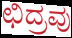
ಛಿದ್ರವು